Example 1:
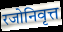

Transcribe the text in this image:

रजोनिवृत्त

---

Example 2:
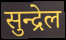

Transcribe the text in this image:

सुन्द्रेल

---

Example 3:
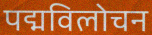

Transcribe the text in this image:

पद्मविलोचन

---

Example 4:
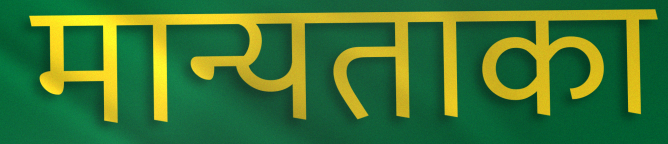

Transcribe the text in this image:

मान्यताका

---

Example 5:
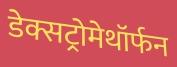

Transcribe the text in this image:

डेक्सट्रोमेथॉर्फन